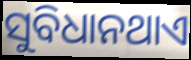
ସୁବିଧାନଥାଏ